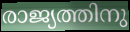
രാജ്യത്തിനു